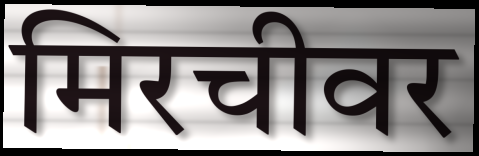
मिरचीवर